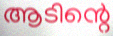
ആടിന്റെ